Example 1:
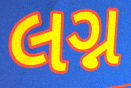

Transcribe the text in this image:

લગ્ન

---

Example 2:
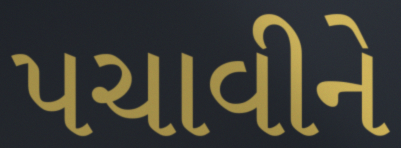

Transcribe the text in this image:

પચાવીને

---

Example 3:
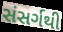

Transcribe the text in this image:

સંસર્ગથી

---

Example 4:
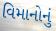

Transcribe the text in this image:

વિમાનોનું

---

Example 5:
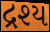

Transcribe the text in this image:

દ્રશ્ય